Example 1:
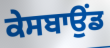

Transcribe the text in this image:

ਕੇਸਬਾਉਂਡ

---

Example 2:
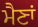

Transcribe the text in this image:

ਮੈਣਾਂ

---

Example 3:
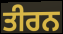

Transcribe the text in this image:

ਤੀਰਨ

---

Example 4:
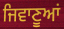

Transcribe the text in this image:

ਜਿਵਾਣੂਆਂ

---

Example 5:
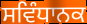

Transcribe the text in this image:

ਸਵਿੰਧਾਨਕ